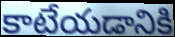
కాటేయడానికి